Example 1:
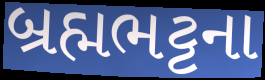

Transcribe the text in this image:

બ્રહ્મભટ્ટના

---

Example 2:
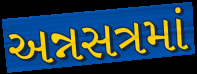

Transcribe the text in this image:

અન્નસત્રમાં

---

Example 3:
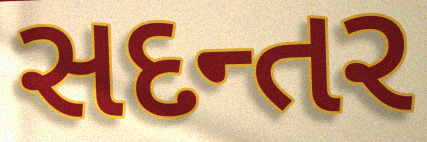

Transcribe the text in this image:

સદન્તર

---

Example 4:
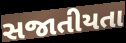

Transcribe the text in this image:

સજાતીયતા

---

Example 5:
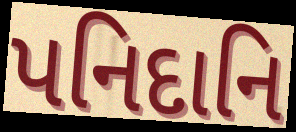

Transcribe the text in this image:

પનિદાનિ